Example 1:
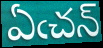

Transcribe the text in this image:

ఏఁచన్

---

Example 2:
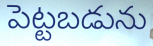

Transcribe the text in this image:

పెట్టబడును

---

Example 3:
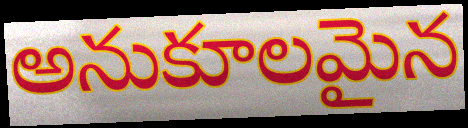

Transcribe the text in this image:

అనుకూలమైన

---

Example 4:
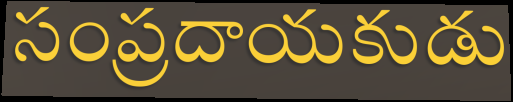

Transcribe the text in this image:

సంప్రదాయకుడు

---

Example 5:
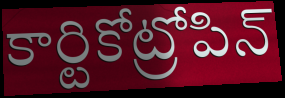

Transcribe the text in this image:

కార్టికోట్రోపిన్